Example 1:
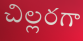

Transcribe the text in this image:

చిల్లరగా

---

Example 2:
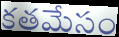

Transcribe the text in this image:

కతమేసం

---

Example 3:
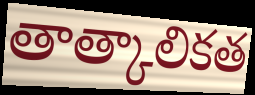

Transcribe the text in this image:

తాత్కాలికత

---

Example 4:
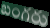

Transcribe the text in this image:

బంగరు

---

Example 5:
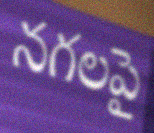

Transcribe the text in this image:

నగలపై